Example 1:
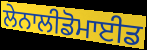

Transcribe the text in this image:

ਲੇਨਾਲੀਡੋਮਾਈਡ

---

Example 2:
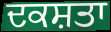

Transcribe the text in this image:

ਦਕਸ਼ਤਾ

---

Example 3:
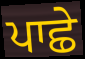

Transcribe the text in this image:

ਪਾਛੇ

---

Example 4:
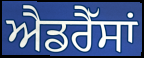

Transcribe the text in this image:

ਐਡਰੈੱਸਾਂ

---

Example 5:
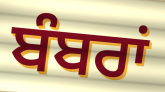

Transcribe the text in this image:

ਬੰਬਰਾਂ